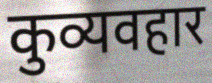
कुव्यवहार